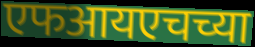
एफआयएचच्या